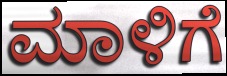
ಮಾಳಿಗೆ